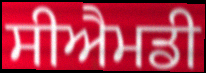
ਸੀਐਮਡੀ